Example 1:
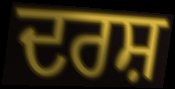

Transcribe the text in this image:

ਦਰਸ਼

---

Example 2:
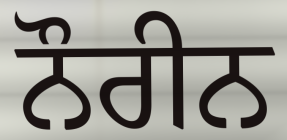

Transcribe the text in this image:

ਨੌਰੀਨ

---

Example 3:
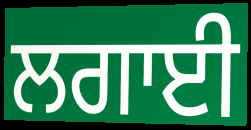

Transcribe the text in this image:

ਲਗਾਈ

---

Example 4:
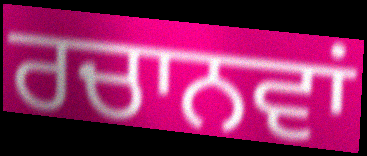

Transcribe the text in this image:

ਰਚਾਨਵਾਂ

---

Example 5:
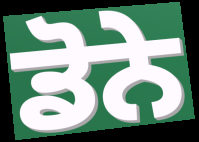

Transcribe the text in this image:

ਡੋਨੇ